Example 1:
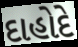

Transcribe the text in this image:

દાહોદે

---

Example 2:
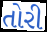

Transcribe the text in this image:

તોરી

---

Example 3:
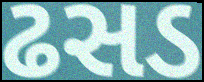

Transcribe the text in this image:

ઢસડ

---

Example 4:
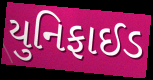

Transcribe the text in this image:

યુનિફાઈડ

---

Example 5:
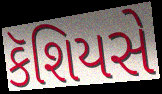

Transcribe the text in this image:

કૅશિયસે